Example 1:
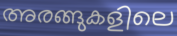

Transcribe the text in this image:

അരങ്ങുകളിലെ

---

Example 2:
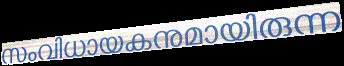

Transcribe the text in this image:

സംവിധായകനുമായിരുന്ന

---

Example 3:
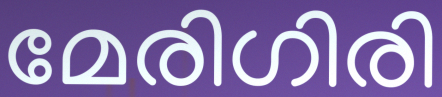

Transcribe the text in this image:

മേരിഗിരി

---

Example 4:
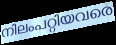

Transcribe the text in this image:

നിലംപറ്റിയവരെ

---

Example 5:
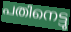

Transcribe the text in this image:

പതിനെട്ടു